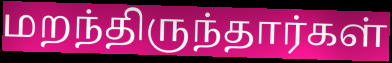
மறந்திருந்தார்கள்